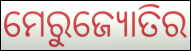
ମେରୁଜ୍ୟୋତିର